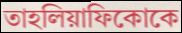
তাহলিয়াফিকোকে